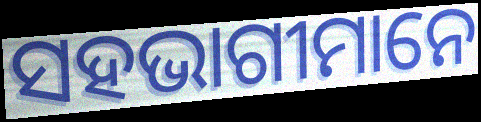
ସହଭାଗୀମାନେ